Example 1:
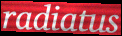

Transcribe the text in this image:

radiatus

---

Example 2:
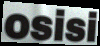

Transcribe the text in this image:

osisi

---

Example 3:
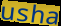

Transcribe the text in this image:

usha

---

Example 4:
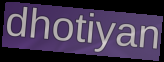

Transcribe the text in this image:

dhotiyan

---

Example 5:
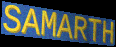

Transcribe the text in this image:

SAMARTH